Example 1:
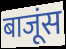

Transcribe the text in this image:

बाजूंस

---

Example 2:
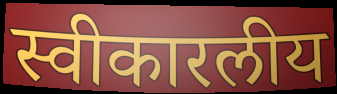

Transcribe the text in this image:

स्वीकारलीय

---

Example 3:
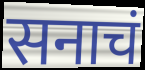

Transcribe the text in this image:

सनाचं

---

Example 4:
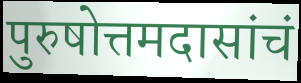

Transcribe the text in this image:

पुरुषोत्तमदासांचं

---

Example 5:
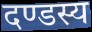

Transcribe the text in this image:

दण्डस्य